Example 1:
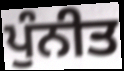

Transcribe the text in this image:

ਪੁੰਨੀਤ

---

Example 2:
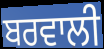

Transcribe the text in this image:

ਬਰਵਾਲੀ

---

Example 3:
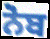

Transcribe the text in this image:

ਨੋਬ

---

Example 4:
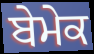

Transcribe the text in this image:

ਬੇਮੇਕ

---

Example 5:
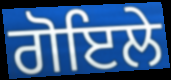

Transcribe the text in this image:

ਗੋਇਲੇ